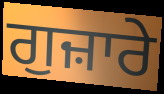
ਗੁਜ਼ਾਰੇ